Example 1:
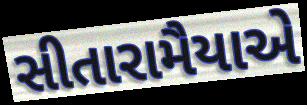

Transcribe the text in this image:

સીતારામૈયાએ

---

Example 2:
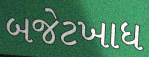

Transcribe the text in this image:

બજેટખાધ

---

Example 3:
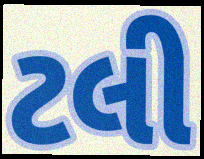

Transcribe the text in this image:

ટલી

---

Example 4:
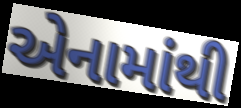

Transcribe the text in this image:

એનામાંથી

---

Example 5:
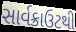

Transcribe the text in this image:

સાર્વક્રાઉટથી